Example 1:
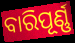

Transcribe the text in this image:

ବାରିପୂର୍ଣ୍ଣ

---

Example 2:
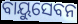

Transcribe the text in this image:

ବାୟୁସେବନ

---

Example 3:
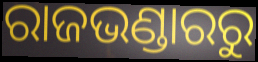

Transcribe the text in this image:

ରାଜଭଣ୍ଡାରରୁ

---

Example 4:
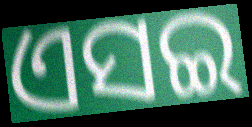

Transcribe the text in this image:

ଏସଇ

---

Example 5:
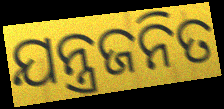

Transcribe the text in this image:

ଯନ୍ତ୍ରଜନିତ